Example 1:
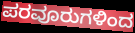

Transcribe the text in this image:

ಪರವೂರುಗಳಿಂದ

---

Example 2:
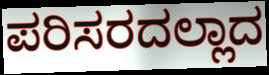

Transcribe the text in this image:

ಪರಿಸರದಲ್ಲಾದ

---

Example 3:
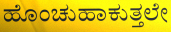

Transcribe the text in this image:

ಹೊಂಚುಹಾಕುತ್ತಲೇ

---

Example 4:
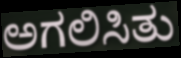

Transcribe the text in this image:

ಅಗಲಿಸಿತು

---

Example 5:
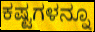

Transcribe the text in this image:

ಕಷ್ಟಗಳನ್ನೂ